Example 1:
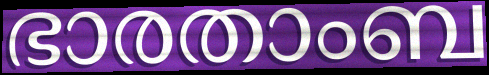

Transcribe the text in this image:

ഭാരതാംബ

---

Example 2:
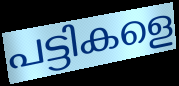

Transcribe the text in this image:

പട്ടികളെ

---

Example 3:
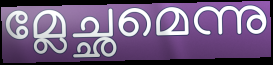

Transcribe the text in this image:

മ്ലേച്ഛമെന്നു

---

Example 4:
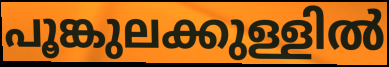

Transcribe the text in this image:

പൂങ്കുലക്കുള്ളിൽ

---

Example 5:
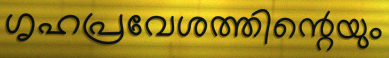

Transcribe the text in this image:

ഗൃഹപ്രവേശത്തിന്റെയും